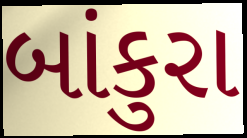
બાંકુરા